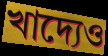
খাদ্যেও